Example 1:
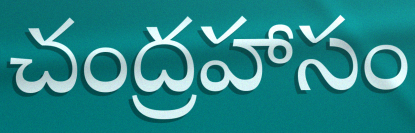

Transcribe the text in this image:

చంద్రహాసం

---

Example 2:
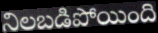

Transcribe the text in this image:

నిలబడిపోయింది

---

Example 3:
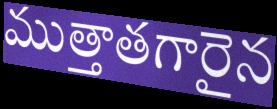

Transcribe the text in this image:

ముత్తాతగారైన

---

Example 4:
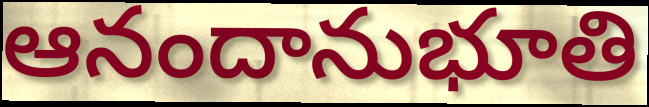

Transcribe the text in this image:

ఆనందానుభూతి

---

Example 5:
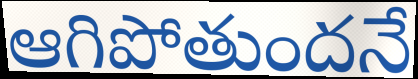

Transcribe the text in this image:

ఆగిపోతుందనే